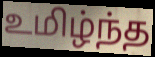
உமிழ்ந்த